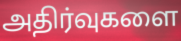
அதிர்வுகளை